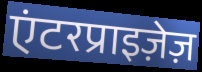
एंटरप्राइज़ेज़